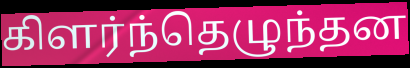
கிளர்ந்தெழுந்தன